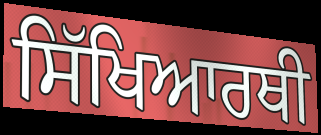
ਸਿੱਖਿਆਰਥੀ